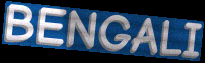
BENGALI